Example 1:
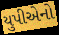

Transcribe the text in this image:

યુપીએનો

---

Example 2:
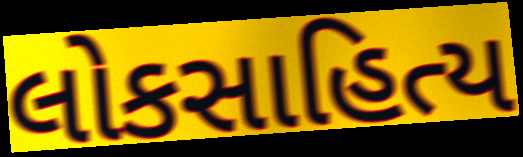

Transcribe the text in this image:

લોકસાહિત્ય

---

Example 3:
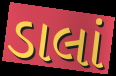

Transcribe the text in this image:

ડાલાં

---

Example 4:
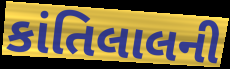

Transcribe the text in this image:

કાંતિલાલની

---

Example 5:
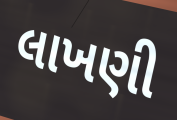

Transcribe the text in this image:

લાખણી